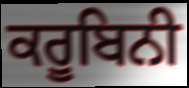
ਕਰੂਬਿਨੀ